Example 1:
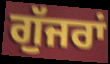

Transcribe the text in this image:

ਗੁੱਜਰਾਂ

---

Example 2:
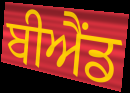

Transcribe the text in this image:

ਬੀਐਂਡ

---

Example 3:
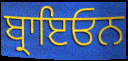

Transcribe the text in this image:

ਬ੍ਰਾਇਓਨ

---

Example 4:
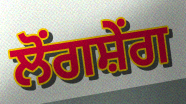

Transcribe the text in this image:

ਲੋਂਗਸ਼ੇਂਗ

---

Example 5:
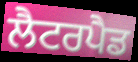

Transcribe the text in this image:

ਲੈਟਰਪੈਡ